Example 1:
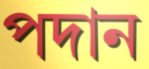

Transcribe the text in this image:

পদান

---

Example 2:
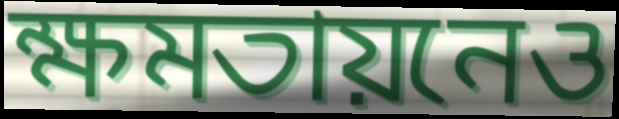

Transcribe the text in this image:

ক্ষমতায়নেও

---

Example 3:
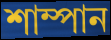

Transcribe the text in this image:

শাম্পান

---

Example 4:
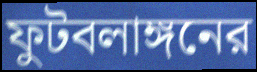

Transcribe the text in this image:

ফুটবলাঙ্গনের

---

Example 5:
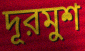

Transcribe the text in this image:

দূরমুশ